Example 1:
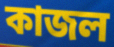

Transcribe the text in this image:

কাজল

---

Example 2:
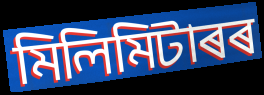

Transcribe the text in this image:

মিলিমিটাৰৰ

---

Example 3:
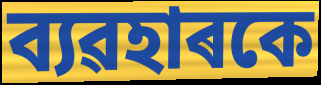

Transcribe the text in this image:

ব্যৱহাৰকে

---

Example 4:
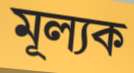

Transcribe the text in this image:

মূল্যক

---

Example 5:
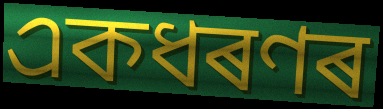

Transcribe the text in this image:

একধৰণৰ